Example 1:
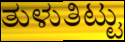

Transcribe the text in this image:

ತುಳುತಿಟ್ಟು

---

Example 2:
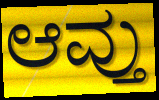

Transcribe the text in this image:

ಆವ್ತು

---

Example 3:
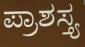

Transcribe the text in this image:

ಪ್ರಾಶಸ್ತ್ಯ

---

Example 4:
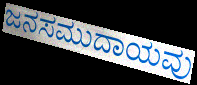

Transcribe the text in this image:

ಜನಸಮುದಾಯವು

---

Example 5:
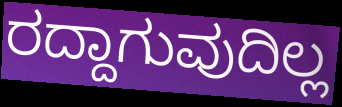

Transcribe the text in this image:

ರದ್ದಾಗುವುದಿಲ್ಲ